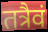
तत्रैवं